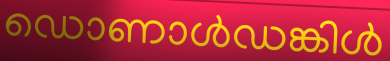
ഡൊണാൾഡങ്കിൾ